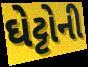
ઘેટ્ટોની